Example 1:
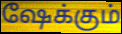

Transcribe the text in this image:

ஷேக்கும்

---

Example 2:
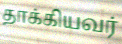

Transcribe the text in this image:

தாக்கியவர்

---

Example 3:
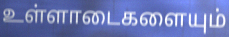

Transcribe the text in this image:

உள்ளாடைகளையும்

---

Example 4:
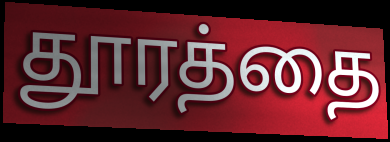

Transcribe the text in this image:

தூரத்தை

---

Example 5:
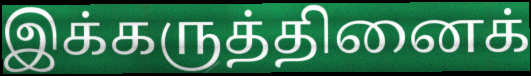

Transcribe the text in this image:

இக்கருத்தினைக்